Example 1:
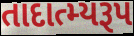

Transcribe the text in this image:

તાદાત્મ્યરૂપ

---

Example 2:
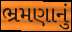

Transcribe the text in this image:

ભ્રમણાનું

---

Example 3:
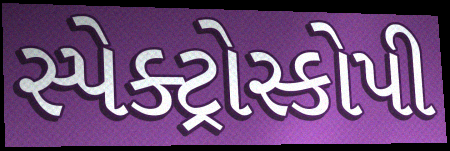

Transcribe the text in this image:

સ્પેક્ટ્રોસ્કોપી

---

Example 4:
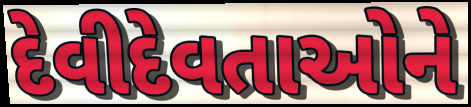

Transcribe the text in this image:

દેવીદેવતાઓને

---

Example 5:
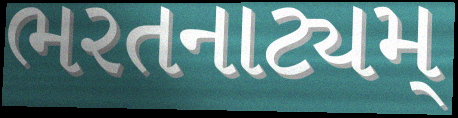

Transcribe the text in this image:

ભરતનાટ્યમ્